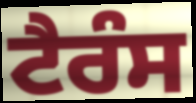
ਟੈਰੰਸ